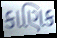
કાણિક